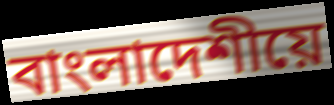
বাংলাদেশীয়ে